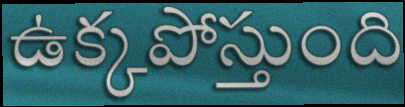
ఉక్కపోస్తుంది